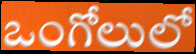
ఒంగోలులో